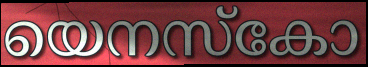
യെനസ്കോ